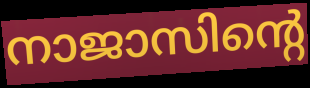
നാജാസിന്റെ